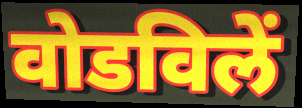
वोडविलें